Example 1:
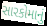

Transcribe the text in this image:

સારકોમાનું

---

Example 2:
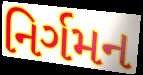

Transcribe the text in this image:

નિર્ગમન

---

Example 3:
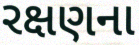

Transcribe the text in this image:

રક્ષણના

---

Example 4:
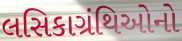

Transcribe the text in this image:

લસિકાગ્રંથિઓનો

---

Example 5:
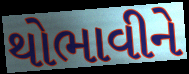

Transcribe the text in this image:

થોભાવીને